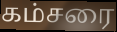
கம்சரை